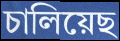
চালিয়েছ